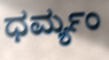
ಧರ್ಮ್ಯಂ